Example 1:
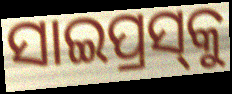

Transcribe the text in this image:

ସାଇପ୍ରସ୍‌କୁ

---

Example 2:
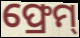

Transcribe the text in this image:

ଫ୍ରେମ୍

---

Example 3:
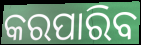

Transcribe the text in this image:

କରପାରିବ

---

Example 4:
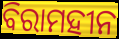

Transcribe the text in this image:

ବିରାମହୀନ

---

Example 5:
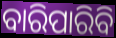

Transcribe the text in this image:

ବାରିପାରିବି